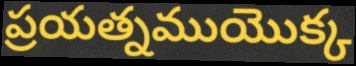
ప్రయత్నముయొక్క